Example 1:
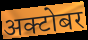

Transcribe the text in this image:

अक्टोबर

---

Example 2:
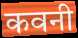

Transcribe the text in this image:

कवनी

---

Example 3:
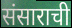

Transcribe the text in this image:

संसाराची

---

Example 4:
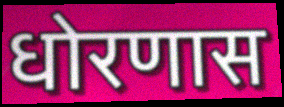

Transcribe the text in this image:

धोरणास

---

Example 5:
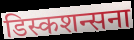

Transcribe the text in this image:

डिस्कशन्सना